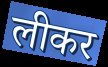
लीकर